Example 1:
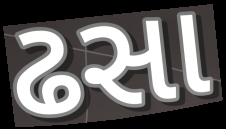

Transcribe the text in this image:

ઢસા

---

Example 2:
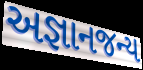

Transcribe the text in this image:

અજ્ઞાનજન્ય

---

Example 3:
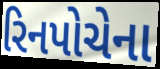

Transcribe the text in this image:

રિનપોચેના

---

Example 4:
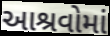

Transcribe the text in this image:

આશ્રવોમાં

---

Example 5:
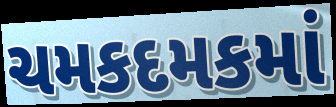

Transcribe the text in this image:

ચમકદમકમાં